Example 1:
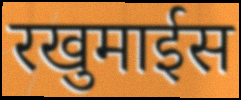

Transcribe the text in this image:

रखुमाईस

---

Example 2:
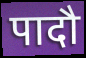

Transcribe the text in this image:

पादौ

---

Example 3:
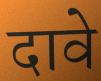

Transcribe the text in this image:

दावे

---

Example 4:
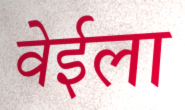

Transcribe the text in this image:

वेईला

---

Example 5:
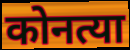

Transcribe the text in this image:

कोनत्या